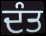
ਦੰਤ